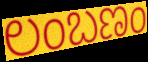
ಲಂಬಣಂ